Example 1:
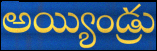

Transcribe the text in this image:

అయ్యిండ్రు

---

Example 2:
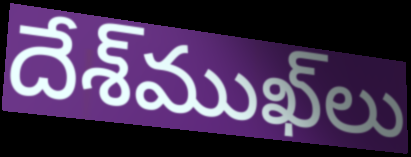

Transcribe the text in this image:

దేశ్‌ముఖ్‌లు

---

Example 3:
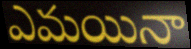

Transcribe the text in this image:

ఎమయినా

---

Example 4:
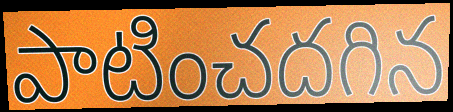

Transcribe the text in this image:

పాటించదగిన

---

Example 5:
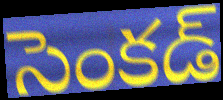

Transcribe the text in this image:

సెంకడ్